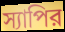
স্যাপির